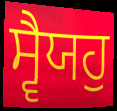
ਸ੍ਵੈਯਹੁ